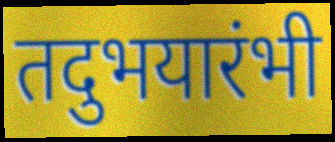
तदुभयारंभी